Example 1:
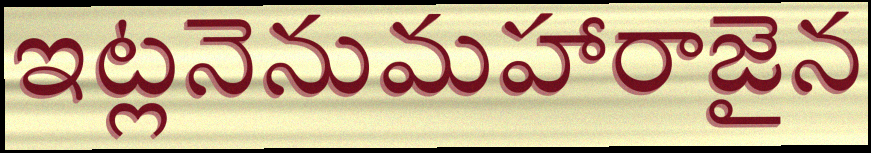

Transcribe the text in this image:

ఇట్లనెనుమహారాజైన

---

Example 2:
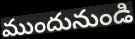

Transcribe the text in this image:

ముందునుండి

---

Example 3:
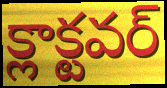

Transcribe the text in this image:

క్లాక్టవర్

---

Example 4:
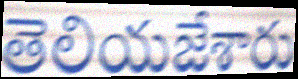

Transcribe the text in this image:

తెలియజేశారు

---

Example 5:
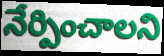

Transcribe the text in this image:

నేర్పించాలని